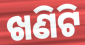
ଖଣିଟି